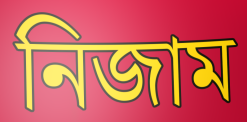
নিজাম